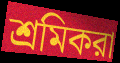
শ্রমিকরা